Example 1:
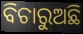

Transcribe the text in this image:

ବିଚାରୁଅଛି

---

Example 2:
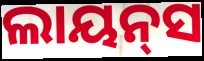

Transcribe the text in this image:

ଲାୟନ୍‌ସ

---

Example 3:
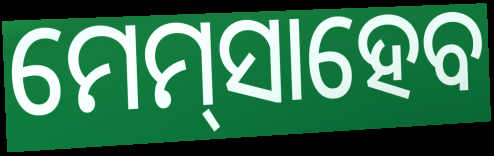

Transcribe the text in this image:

ମେମ୍‌ସାହେବ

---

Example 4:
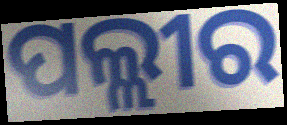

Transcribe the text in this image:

ପଲ୍ଲୀର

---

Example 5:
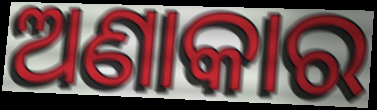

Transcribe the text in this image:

ଅଣାକାର